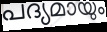
പദ്യമായും